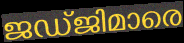
ജഡ്ജിമാരെ